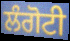
ਲੰਗੋਟੀ